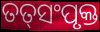
ତତ୍‌ସଂପୃକ୍ତ